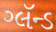
ગ્લૅન્ડ